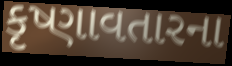
કૃષ્ણાવતારના